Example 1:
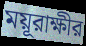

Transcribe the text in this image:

ময়ূরাক্ষীর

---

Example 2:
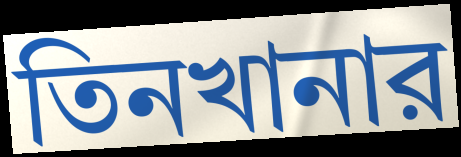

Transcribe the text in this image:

তিনখানার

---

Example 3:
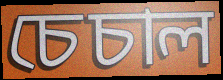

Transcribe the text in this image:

চেচাল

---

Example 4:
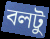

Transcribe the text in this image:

বলটু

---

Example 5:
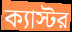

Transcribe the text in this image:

ক্যাস্টর